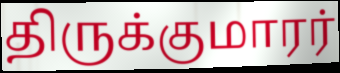
திருக்குமாரர்